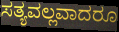
ಸತ್ಯವಲ್ಲವಾದರೂ